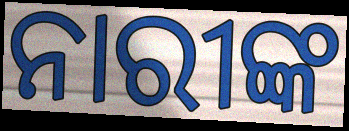
ନାରୀଙ୍କ